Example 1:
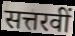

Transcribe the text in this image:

सत्तरवीं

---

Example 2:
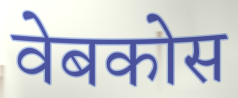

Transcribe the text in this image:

वेबकोस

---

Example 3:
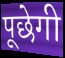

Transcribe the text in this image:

पूछेगी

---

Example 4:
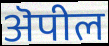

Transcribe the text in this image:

ऄपील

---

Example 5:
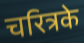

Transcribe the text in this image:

चरित्रके